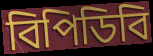
বিপিডিবি